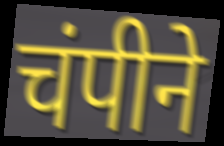
चंपीने